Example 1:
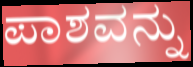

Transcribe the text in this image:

ಪಾಶವನ್ನು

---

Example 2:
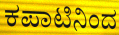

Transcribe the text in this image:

ಕಪಾಟಿನಿಂದ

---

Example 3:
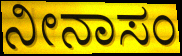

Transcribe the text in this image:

ನೀನಾಸಂ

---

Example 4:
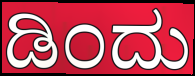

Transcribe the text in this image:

ಡಿಂದು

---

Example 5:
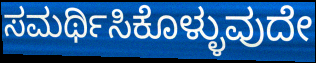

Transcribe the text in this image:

ಸಮರ್ಥಿಸಿಕೊಳ್ಳುವುದೇ